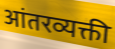
आंतरव्यक्ती